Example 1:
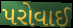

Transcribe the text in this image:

પરોવાઈ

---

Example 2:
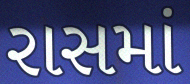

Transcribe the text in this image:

રાસમાં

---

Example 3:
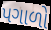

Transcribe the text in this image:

પગાળો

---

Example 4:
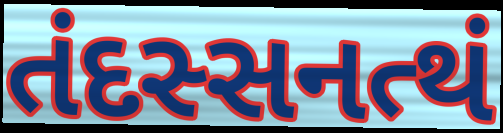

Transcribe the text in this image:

તંદસ્સનત્થં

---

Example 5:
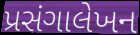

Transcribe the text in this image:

પ્રસંગાલેખન